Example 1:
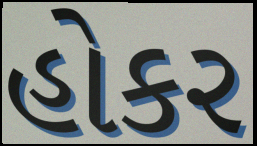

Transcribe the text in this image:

હોકર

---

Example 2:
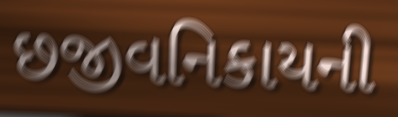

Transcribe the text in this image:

છજીવનિકાયની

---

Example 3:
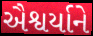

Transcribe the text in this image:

ઐશ્વર્યાને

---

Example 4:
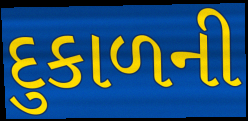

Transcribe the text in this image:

દુકાળની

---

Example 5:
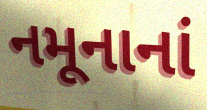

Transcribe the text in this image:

નમૂનાનાં